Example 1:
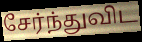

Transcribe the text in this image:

சேர்ந்துவிட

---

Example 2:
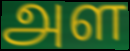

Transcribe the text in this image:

அள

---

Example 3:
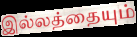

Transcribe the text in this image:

இல்லத்தையும்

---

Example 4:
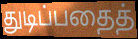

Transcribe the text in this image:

துடிப்பதைத்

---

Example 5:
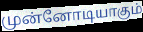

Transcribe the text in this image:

முன்னோடியாகும்